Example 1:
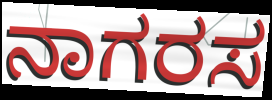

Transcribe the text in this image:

ನಾಗರಸ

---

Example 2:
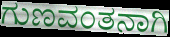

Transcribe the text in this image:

ಗುಣವಂತನಾಗಿ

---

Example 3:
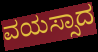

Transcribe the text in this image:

ವಯಸ್ಸಾದ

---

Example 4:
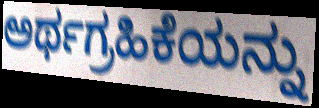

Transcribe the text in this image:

ಅರ್ಥಗ್ರಹಿಕೆಯನ್ನು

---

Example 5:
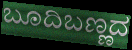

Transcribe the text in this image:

ಬೂದಿಬಣ್ಣದ